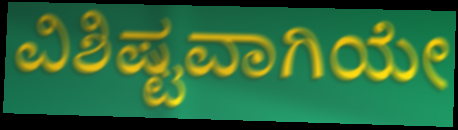
ವಿಶಿಷ್ಟವಾಗಿಯೇ